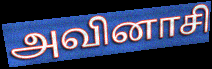
அவினாசி